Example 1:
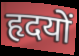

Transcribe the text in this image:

हृदयों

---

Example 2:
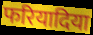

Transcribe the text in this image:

फरियादिया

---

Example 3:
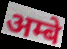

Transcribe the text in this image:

अम्बे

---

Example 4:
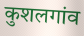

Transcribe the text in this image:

कुशलगांव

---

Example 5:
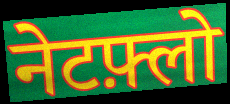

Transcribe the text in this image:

नेटफ़्लो